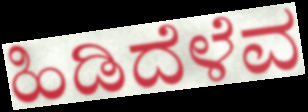
ಹಿಡಿದೆಳೆವ